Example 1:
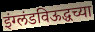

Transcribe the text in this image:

इंग्लंडविऊद्धच्या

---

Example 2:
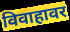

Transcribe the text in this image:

विवाहावर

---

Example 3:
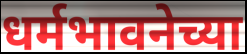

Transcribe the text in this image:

धर्मभावनेच्या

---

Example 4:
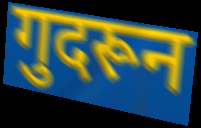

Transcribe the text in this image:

गुदरून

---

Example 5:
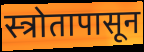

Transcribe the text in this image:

स्त्रोतापासून